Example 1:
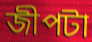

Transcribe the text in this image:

জীপটা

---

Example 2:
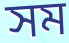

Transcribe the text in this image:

সম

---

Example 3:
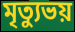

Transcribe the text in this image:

মৃত্যুভয়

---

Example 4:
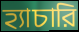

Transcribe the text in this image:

হ্যাচারি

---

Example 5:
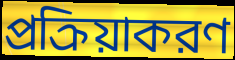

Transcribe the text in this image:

প্রক্রিয়াকরণ